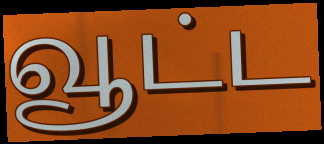
வூட்ட